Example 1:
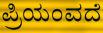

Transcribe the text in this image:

ಪ್ರಿಯಂವದೆ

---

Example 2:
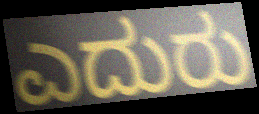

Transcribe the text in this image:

ಎದುರು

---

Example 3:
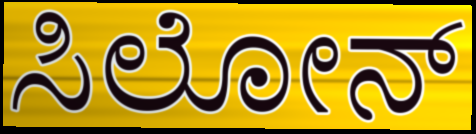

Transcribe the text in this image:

ಸಿಲೋನ್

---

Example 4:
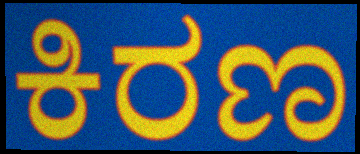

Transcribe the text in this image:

ಕಿರಣ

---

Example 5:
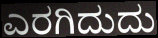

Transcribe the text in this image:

ಎರಗಿದುದು